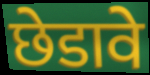
छेडावे